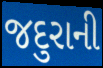
જદુરાની